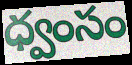
ధ్వంసం